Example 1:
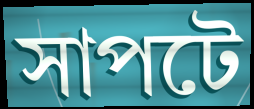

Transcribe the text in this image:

সাপটে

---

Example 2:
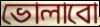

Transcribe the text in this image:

ভোলাবো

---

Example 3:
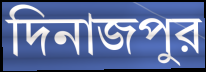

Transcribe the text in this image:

দিনাজপুর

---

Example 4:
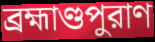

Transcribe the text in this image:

ব্রহ্মাণ্ডপুরাণ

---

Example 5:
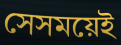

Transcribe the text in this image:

সেসময়েই